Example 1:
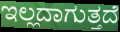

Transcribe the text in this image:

ಇಲ್ಲದಾಗುತ್ತದೆ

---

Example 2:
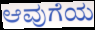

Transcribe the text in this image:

ಆವುಗೆಯ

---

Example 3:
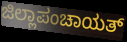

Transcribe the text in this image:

ಜಿಲ್ಲಾಪಂಚಾಯತ್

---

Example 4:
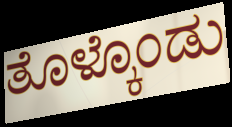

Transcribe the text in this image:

ತೊಳ್ಕೊಂಡು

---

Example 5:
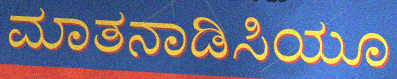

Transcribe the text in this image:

ಮಾತನಾಡಿಸಿಯೂ